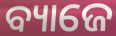
ବ୍ୟାଜେ